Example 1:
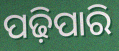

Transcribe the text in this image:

ପଢ଼ିପାରି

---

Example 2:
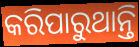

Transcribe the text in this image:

କରିପାରୁଥାନ୍ତି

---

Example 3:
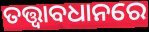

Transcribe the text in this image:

ତତ୍ତ୍ୱାବଧାନରେ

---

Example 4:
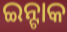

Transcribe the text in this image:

ଇନ୍ଟାକ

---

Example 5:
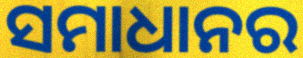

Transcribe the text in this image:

ସମାଧାନର